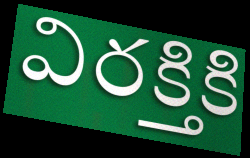
విరక్తికి